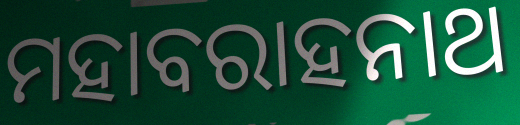
ମହାବରାହନାଥ